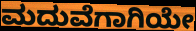
ಮದುವೆಗಾಗಿಯೇ